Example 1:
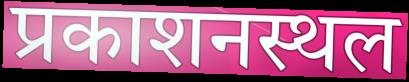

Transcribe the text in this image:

प्रकाशनस्थल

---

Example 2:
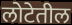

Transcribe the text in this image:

लोटेतील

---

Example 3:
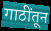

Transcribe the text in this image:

गाठींतून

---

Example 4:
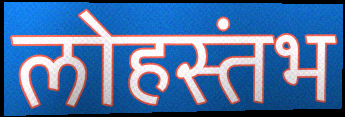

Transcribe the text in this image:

लोहस्तंभ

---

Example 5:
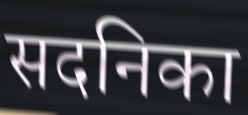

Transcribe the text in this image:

सदनिका